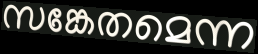
സങ്കേതമെന്ന